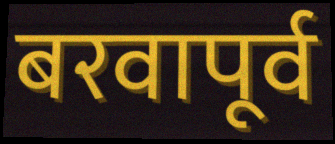
बरवापूर्व